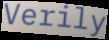
Verily